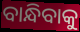
ବାନ୍ଧିବାକୁ